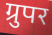
ग्रुपर